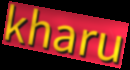
kharu